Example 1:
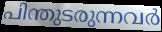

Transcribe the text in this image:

പിന്തുടരുന്നവർ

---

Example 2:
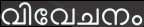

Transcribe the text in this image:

വിവേചനം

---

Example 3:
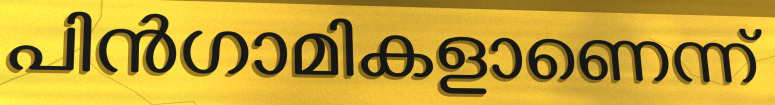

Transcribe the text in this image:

പിൻഗാമികളാണെന്ന്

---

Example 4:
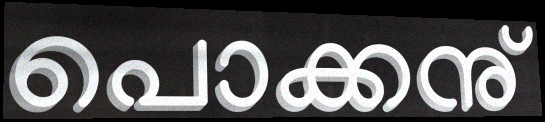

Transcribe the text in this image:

പൊക്കനു്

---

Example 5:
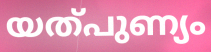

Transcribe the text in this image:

യത്പുണ്യം